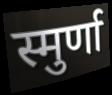
स्मुर्णा